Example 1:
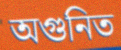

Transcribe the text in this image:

অগুনিত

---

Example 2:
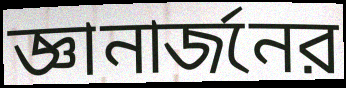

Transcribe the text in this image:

জ্ঞানার্জনের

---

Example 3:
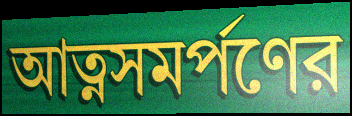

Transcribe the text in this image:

আত্নসমর্পণের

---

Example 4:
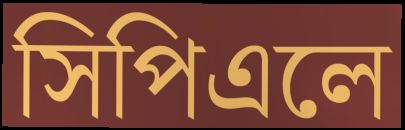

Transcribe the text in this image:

সিপিএলে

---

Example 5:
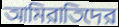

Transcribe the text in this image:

আমিরাতিদের